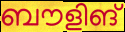
ബൗളിങ്